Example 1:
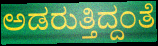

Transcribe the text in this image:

ಅಡರುತ್ತಿದ್ದಂತೆ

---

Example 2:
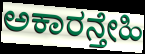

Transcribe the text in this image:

ಅಕಾರನ್ತೇಹಿ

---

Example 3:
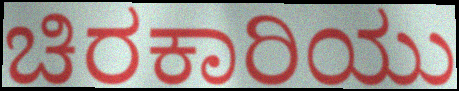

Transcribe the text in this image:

ಚಿರಕಾರಿಯು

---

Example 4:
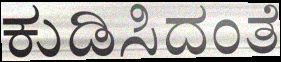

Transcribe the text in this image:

ಕುಡಿಸಿದಂತೆ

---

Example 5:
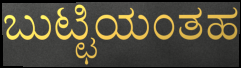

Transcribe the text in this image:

ಬುಟ್ಟಿಯಂತಹ